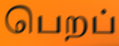
பெறப்